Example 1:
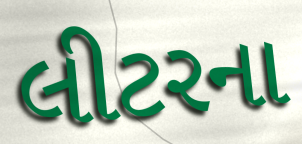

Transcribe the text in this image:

લીટરના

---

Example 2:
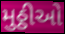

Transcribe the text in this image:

મુઠ્ઠીઓ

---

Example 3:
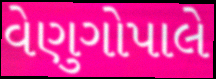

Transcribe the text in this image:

વેણુગોપાલે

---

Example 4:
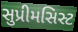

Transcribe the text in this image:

સુપ્રીમસિસ્ટ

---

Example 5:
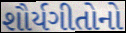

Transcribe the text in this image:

શૌર્યગીતોનો